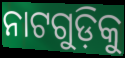
ନାଟଗୁଡ଼ିକୁ